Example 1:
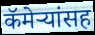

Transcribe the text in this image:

कॅमेऱ्यांसह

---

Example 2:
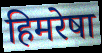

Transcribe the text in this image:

हिमरेषा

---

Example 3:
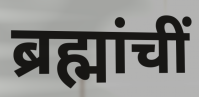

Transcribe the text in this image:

ब्रह्मांचीं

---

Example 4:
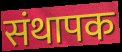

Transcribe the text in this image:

संथापक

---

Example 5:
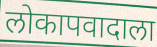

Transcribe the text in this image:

लोकापवादाला